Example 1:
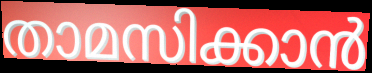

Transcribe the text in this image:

താമസിക്കാൻ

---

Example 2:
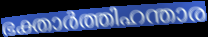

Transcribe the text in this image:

ഭക്താർത്തിഹന്താര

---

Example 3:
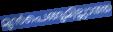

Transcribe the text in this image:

മുൻപെങ്ങുമില്ലാത്ത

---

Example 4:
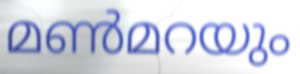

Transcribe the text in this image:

മൺമറയും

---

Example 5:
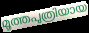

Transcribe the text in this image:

മൂത്തപുത്രിയായ